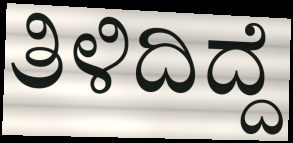
ತಿಳಿದಿದ್ದೆ